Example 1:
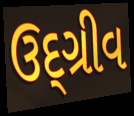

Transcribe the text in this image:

ઉદ્ગ્રીવ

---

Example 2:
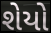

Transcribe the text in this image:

શેયો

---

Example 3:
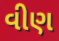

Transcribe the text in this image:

વીણ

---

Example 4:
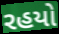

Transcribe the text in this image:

રહયો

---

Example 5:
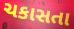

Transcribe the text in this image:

ચકાસતા